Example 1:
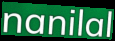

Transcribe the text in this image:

nanilal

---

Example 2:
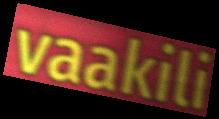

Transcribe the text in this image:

vaakili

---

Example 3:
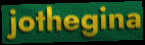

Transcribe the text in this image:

jothegina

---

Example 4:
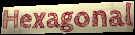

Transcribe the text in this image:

Hexagonal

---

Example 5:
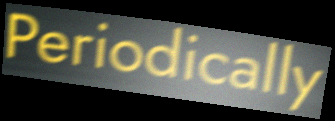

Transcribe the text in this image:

Periodically